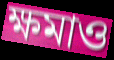
ক্ষমাও